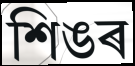
শিঙৰ